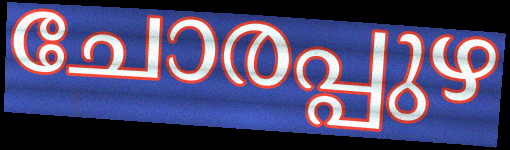
ചോരപ്പുഴ